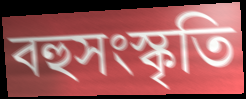
বহুসংস্কৃতি